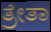
ತ್ರೇತಾ